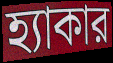
হ্যাকার